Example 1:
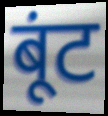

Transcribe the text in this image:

बूंट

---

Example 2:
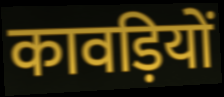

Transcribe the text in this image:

कावड़ियों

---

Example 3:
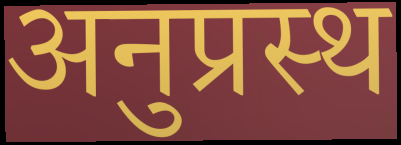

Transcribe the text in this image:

अनुप्रस्थ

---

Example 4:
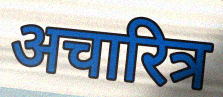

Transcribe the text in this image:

अचारित्र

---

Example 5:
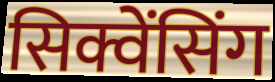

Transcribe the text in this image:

सिक्वेंसिंग